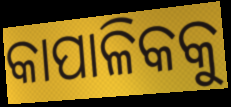
କାପାଳିକକୁ